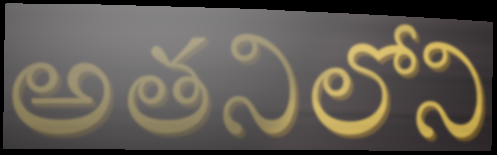
అతనిలోని